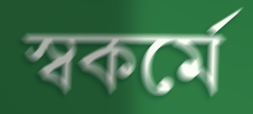
স্বকর্মে